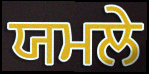
ਯਮਲੇ